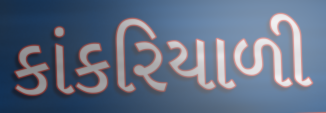
કાંકરિયાળી